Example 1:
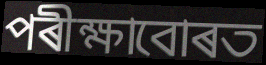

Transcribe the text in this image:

পৰীক্ষাবোৰত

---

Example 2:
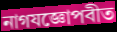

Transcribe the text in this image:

নাগযজ্ঞোপবীত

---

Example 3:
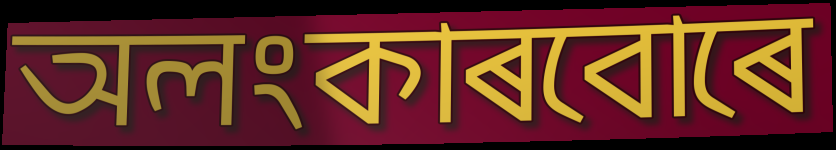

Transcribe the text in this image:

অলংকাৰবোৰে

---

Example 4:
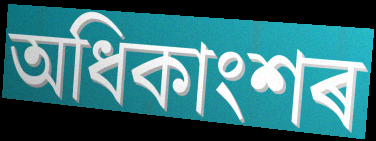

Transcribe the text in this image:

অধিকাংশৰ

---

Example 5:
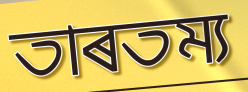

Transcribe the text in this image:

তাৰতম্য